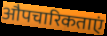
औपचारिकताएं